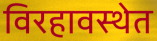
विरहावस्थेत